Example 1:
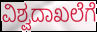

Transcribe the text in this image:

ವಿಶ್ವದಾಖಲೆಗೆ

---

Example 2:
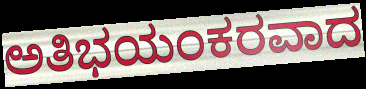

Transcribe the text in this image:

ಅತಿಭಯಂಕರವಾದ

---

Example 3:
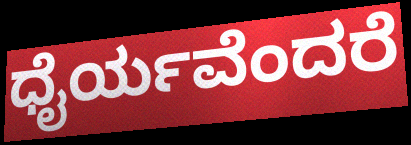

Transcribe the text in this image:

ಧೈರ್ಯವೆಂದರೆ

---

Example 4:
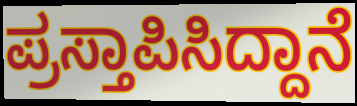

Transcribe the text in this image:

ಪ್ರಸ್ತಾಪಿಸಿದ್ದಾನೆ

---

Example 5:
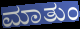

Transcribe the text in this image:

ಮಾತುಂ